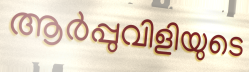
ആർപ്പുവിളിയുടെ